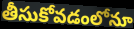
తీసుకోవడంలోనూ